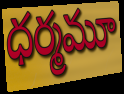
ధర్మమూ